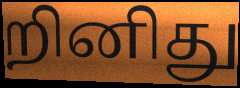
றினிது